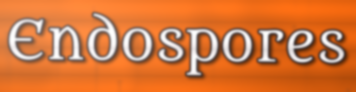
Endospores